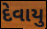
દેવાયુ